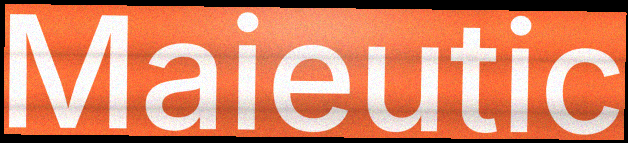
Maieutic